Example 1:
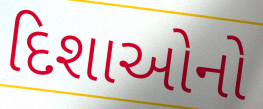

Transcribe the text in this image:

દિશાઓનો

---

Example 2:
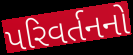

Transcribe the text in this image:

પરિવર્તનનો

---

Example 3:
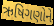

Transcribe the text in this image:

ઋષિગણોને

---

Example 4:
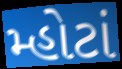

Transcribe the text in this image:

મ્હોટાં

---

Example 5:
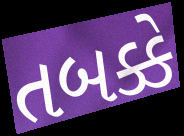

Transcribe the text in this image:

તબક્કે